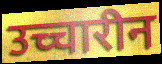
उच्चारीन